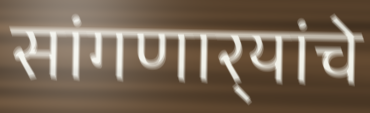
सांगणार्‍यांचे